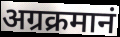
अग्रक्रमानं